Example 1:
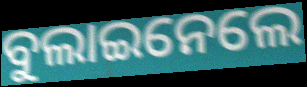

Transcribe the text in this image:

ବୁଲାଇନେଲେ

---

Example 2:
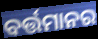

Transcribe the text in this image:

ବର୍ତ୍ତମାନର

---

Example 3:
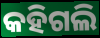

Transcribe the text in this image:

କହିଗଲି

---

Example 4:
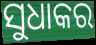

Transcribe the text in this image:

ସୁଧାକର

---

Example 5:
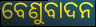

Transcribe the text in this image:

ବେଣୁବାଦନ